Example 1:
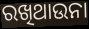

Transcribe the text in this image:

ରଖିଥାଉନା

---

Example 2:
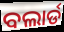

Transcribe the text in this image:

ବଲାର୍ଡ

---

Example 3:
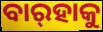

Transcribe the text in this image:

ବାର୍‍ହାକୁ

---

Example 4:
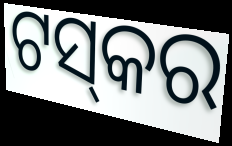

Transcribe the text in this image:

ଟସ୍‍କର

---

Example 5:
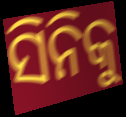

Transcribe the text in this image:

ସିନିକୁ